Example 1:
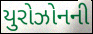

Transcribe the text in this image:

યુરોઝોનની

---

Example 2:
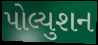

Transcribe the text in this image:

પોલ્યુશન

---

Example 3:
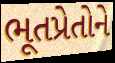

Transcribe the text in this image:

ભૂતપ્રેતોને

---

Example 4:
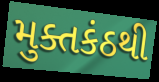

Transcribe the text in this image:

મુક્તકંઠથી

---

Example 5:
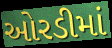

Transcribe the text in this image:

ઓરડીમાં